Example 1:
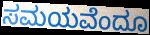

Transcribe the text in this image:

ಸಮಯವೆಂದೂ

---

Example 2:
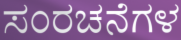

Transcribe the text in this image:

ಸಂರಚನೆಗಳ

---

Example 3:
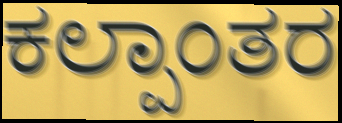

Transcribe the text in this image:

ಕಲ್ಪಾಂತರ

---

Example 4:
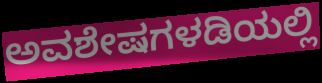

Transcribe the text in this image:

ಅವಶೇಷಗಳಡಿಯಲ್ಲಿ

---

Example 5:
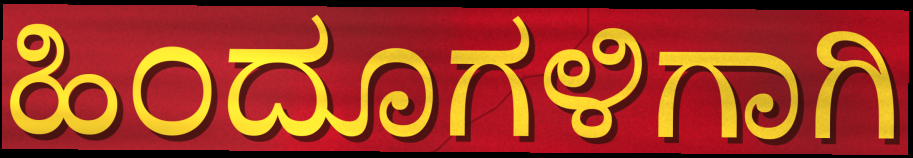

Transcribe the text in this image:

ಹಿಂದೂಗಳಿಗಾಗಿ